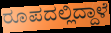
ರೂಪದಲ್ಲಿದ್ದಾಳೆ